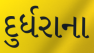
દુર્ધરાના